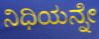
ನಿಧಿಯನ್ನೇ